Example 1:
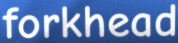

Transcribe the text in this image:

forkhead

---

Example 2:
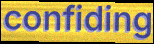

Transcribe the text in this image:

confiding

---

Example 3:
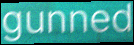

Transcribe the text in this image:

gunned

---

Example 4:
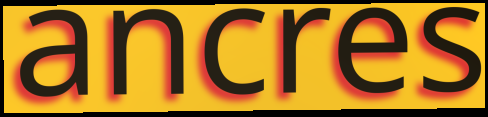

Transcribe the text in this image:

ancres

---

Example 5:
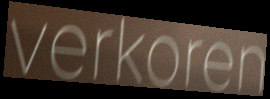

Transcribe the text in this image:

verkoren